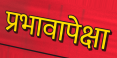
प्रभावापेक्षा